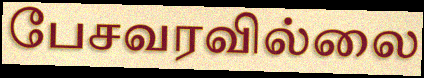
பேசவரவில்லை